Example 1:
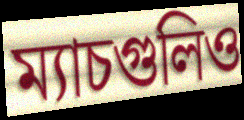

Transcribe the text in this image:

ম্যাচগুলিও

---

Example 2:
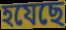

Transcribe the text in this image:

হযেছে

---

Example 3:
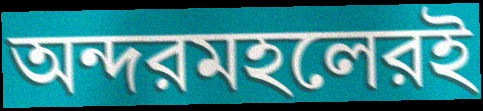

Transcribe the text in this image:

অন্দরমহলেরই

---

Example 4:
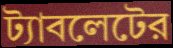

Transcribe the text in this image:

ট্যাবলেটের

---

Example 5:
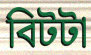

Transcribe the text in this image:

বিটটা